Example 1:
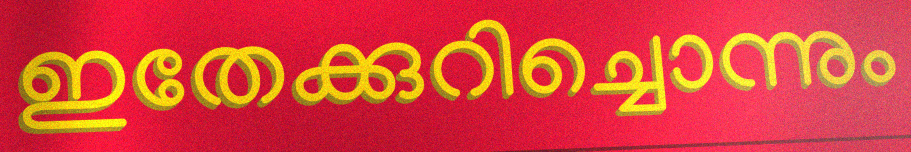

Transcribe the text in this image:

ഇതേക്കുറിച്ചൊന്നും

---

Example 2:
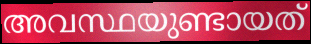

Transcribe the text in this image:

അവസ്ഥയുണ്ടായത്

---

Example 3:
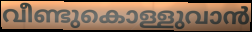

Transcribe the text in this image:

വീണ്ടുകൊള്ളുവാൻ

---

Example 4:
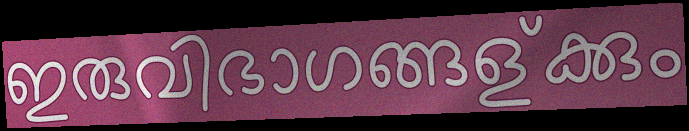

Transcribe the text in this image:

ഇരുവിഭാഗങ്ങള്ക്കും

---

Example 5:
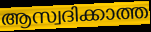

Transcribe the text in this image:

ആസ്വദിക്കാത്ത